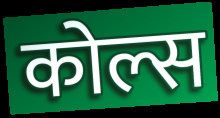
कोल्स